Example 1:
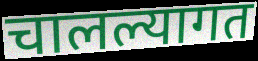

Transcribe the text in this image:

चालल्यागत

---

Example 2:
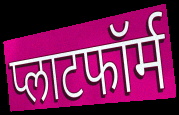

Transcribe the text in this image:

प्लाटफॉर्म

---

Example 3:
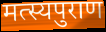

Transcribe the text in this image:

मत्स्यपुराण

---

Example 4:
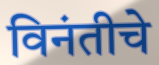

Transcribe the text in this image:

विनंतीचे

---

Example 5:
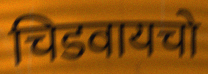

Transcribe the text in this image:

चिडवायचो